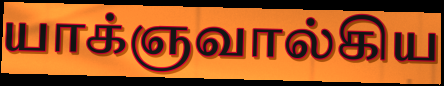
யாக்ஞவால்கிய